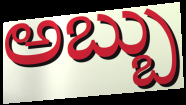
అబ్బు